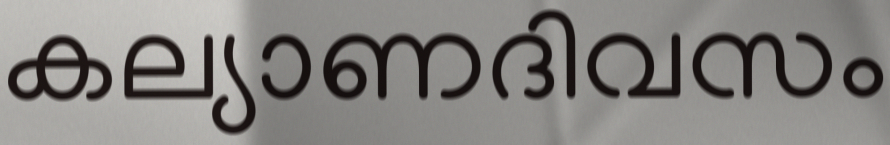
കല്യാണദിവസം